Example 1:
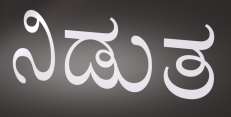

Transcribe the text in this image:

ನಿಡುತ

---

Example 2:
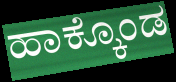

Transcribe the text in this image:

ಹಾಕ್ಕೊಂಡ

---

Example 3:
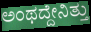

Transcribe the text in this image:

ಅಂಥದ್ದೇನಿತ್ತು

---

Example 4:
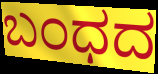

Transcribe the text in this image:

ಬಂಧದ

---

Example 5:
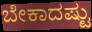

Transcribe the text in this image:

ಬೇಕಾದಷ್ಟು